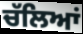
ਚੱਲਿਆਂ